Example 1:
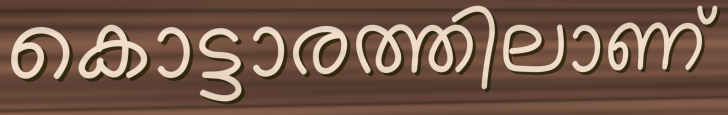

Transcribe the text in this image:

കൊട്ടാരത്തിലാണ്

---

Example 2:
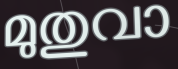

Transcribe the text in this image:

മുതുവാ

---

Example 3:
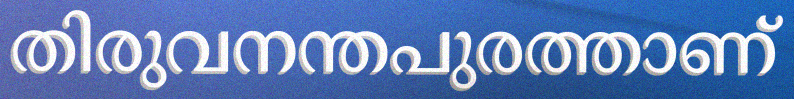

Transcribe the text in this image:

തിരുവനന്തപുരത്താണ്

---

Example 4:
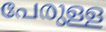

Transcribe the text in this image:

പേരുള്ള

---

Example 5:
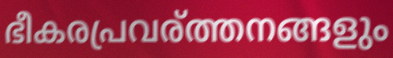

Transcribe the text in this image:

ഭീകരപ്രവര്ത്തനങ്ങളും